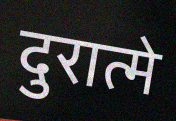
दुरात्मे